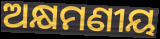
ଅକ୍ଷମଣୀୟ